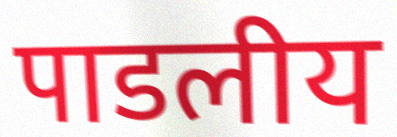
पाडलीय